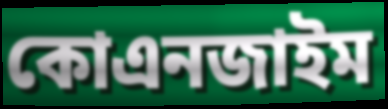
কোএনজাইম